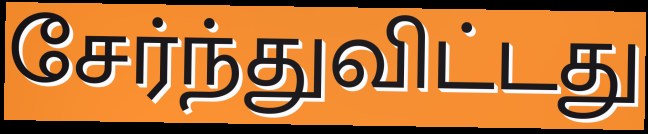
சேர்ந்துவிட்டது